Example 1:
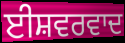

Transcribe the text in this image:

ਈਸ਼ਵਰਵਾਦ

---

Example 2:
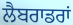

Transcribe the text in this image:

ਲੈਬਰਾਡਰਾਂ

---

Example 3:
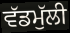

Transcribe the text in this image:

ਵੱਡਮੁੱਲੀ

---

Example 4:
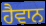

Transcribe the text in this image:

ਹੈਵਾਨ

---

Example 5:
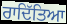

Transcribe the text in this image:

ਰਾਦਿੱਤਿਆ